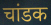
चांडक